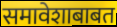
समावेशाबाबत